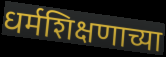
धर्मशिक्षणाच्या